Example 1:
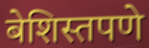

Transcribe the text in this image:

बेशिस्तपणे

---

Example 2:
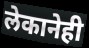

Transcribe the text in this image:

लेकानेही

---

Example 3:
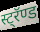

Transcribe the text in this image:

स्ट्रॅण्ड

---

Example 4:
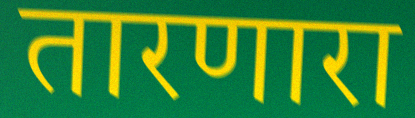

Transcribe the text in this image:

तारणारा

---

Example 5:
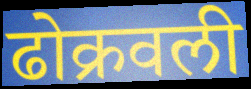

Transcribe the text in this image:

ढोक्रवली